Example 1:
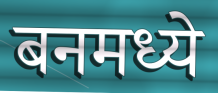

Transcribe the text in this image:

बनमध्ये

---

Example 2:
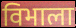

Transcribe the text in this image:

विभाला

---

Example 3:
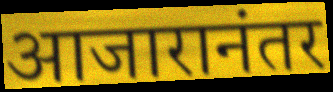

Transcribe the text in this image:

आजारानंतर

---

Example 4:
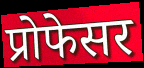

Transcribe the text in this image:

प्रोफेसर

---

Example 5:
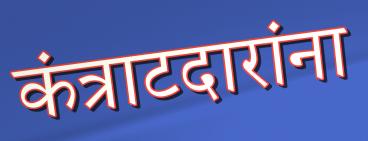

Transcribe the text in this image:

कंत्राटदारांना